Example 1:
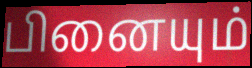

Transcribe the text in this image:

பினையும்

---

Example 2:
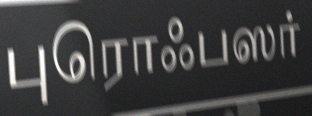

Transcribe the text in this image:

புரொஃபஸர்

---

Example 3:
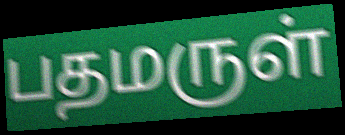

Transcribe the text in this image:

பதமருள்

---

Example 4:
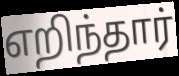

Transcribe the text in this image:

எறிந்தார்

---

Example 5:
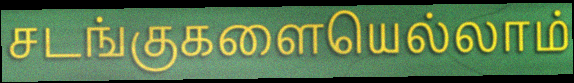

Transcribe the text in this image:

சடங்குகளையெல்லாம்